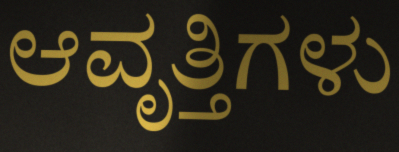
ಆವೃತ್ತಿಗಳು